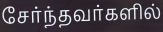
சேர்ந்தவர்களில்